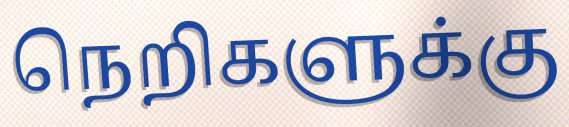
நெறிகளுக்கு